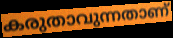
കരുതാവുന്നതാണ്